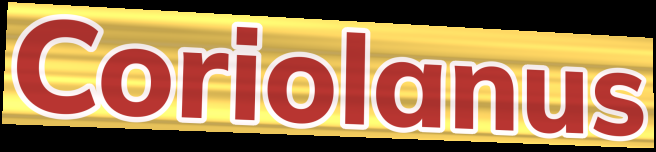
Coriolanus